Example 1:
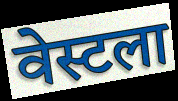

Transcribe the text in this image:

वेस्टला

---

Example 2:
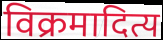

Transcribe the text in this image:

विक्रमादित्य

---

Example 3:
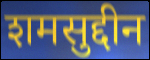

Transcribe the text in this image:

शमसुद्दीन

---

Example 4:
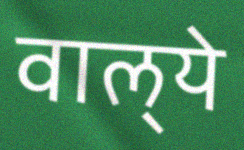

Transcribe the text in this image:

वाल्ये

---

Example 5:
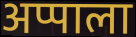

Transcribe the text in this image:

अप्पाला